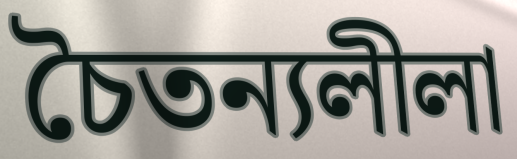
চৈতন্যলীলা